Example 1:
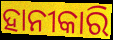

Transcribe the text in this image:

ହାନୀକାରି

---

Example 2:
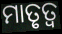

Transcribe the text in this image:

ମାତୃତ୍ୱ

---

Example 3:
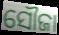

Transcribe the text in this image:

ସୌଜା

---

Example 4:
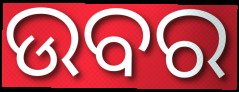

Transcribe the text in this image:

ଉବର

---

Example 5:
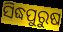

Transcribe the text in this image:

ସିଦ୍ଧପୁରୁଷ